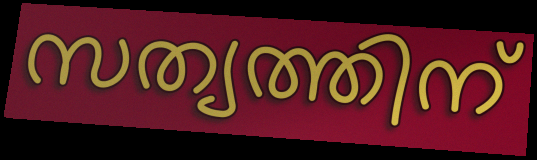
സത്യത്തിന്